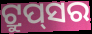
ଟ୍ରୁପ୍‌ସର